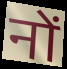
नों